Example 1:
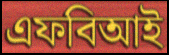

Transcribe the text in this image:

এফবিআই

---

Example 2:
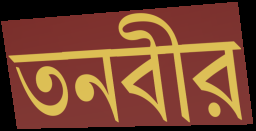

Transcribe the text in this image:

তনবীর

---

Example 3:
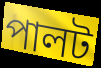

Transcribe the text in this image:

পালট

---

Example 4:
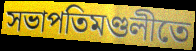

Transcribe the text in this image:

সভাপতিমণ্ডলীতে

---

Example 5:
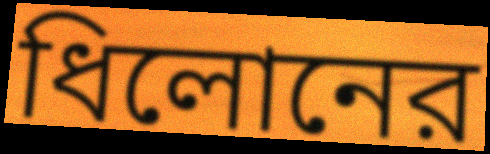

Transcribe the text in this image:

ধিলোনের